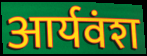
आर्यवंश